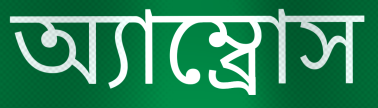
অ্যাম্ব্রোস